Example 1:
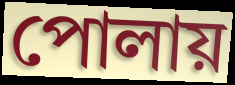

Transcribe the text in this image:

পোলায়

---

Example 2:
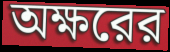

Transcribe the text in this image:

অক্ষরের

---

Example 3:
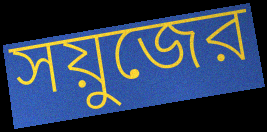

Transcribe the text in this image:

সয়ুজের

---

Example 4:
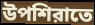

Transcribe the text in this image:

উপশিরাতে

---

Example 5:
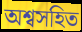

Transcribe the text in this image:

অশ্বসহিত